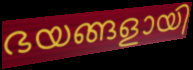
ഭയങ്ങളായി